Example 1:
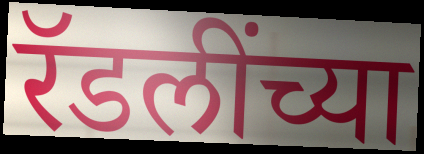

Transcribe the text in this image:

रॅडलींच्या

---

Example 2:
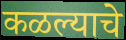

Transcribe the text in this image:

कळल्याचे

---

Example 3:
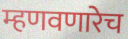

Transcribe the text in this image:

म्हणवणारेच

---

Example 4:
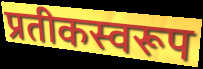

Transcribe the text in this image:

प्रतीकस्वरूप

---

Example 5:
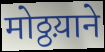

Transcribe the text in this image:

मोठ्ठय़ाने